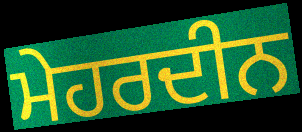
ਮੇਹਰਦੀਨ